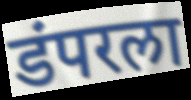
डंपरला